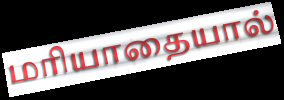
மரியாதையால்